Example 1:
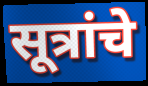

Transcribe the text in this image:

सूत्रांचे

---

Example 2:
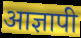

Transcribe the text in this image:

आज्ञापी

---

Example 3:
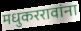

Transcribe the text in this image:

मधुकररावांना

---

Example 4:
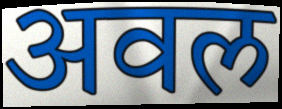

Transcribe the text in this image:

अवल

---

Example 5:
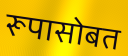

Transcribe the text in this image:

रूपासोबत